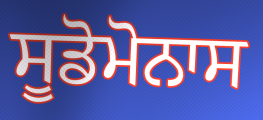
ਸੂਡੋਮੋਨਾਸ